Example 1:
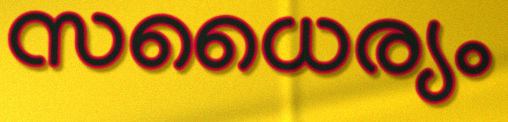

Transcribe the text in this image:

സധൈര്യം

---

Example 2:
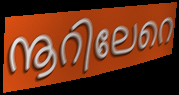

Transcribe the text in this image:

നൂറിലേറെ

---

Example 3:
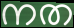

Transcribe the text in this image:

നത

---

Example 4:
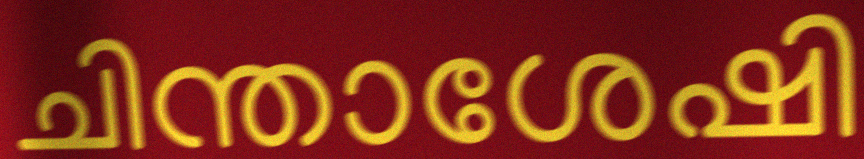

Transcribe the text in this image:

ചിന്താശേഷി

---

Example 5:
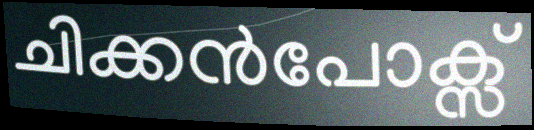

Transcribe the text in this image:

ചിക്കൻപോക്സ്